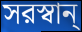
সরস্বান্